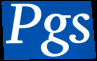
Pgs